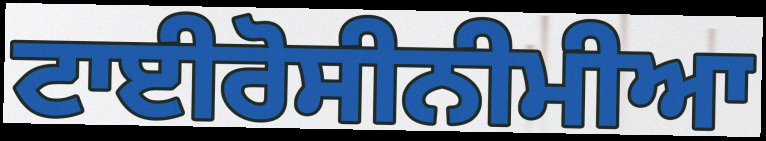
ਟਾਈਰੋਸੀਨੀਮੀਆ